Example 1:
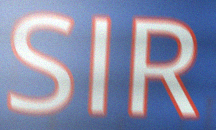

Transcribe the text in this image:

SIR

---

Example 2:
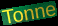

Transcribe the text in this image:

Tonne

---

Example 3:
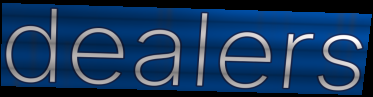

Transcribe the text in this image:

dealers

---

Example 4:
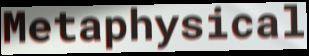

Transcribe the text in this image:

Metaphysical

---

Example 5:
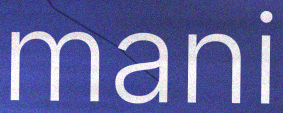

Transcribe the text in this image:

mani